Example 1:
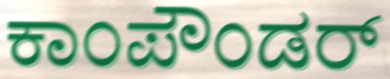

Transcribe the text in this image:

ಕಾಂಪೌಂಡರ್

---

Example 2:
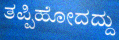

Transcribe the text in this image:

ತಪ್ಪಿಹೋದದ್ದು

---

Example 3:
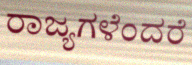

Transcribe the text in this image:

ರಾಜ್ಯಗಳೆಂದರೆ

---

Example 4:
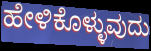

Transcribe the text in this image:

ಹೇಳಿಕೊಳ್ಳುವುದು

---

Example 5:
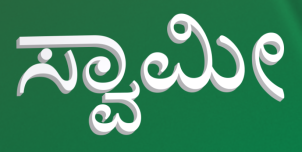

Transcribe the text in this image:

ಸ್ವಾಮೀ